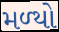
મળ્‍યો